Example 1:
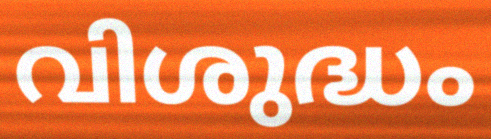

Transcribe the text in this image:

വിശുദ്ധം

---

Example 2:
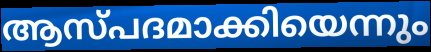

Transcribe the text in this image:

ആസ്പദമാക്കിയെന്നും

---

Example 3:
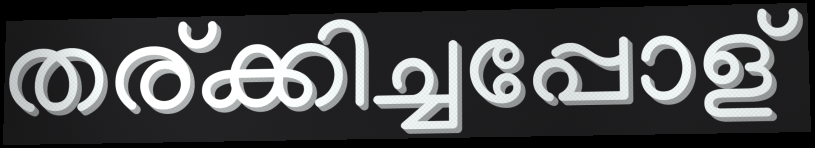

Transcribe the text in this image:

തര്ക്കിച്ചപ്പോള്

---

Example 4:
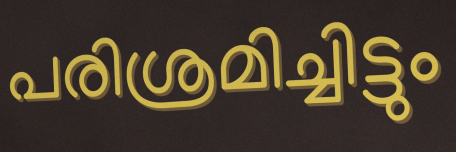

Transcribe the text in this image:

പരിശ്രമിച്ചിട്ടും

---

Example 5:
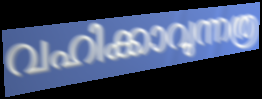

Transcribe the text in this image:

വഹിക്കാവുന്നത്ര